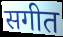
सगीत